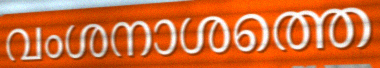
വംശനാശത്തെ